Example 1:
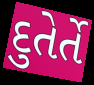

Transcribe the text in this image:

દુતેર્તે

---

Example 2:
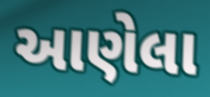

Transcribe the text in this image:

આણેલા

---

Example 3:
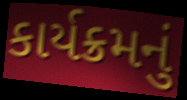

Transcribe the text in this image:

કાર્યક્રમનું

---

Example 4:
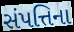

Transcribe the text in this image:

સંપત્તિના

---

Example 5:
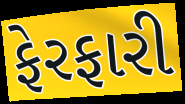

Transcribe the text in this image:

ફેરફારી